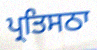
ਪ੍ਰਤਿਸਠਾ